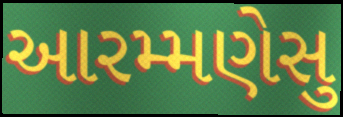
આરમ્મણેસુ